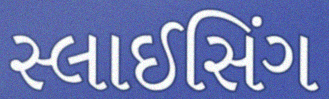
સ્લાઈસિંગ